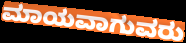
ಮಾಯವಾಗುವರು